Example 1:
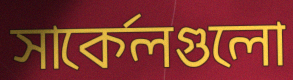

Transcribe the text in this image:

সার্কেলগুলো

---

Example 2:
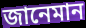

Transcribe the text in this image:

জানেমান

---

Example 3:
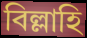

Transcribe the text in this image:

বিল্লাহি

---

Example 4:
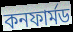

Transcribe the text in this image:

কনফার্মড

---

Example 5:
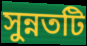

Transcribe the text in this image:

সুন্নতটি